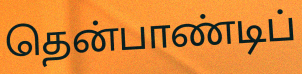
தென்பாண்டிப்